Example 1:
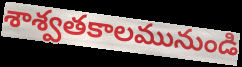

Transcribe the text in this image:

శాశ్వతకాలమునుండి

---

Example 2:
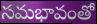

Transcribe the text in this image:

సమభావంతో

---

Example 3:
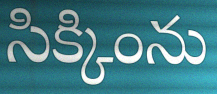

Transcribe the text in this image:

సిక్కింను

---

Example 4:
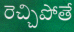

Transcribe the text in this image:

రెచ్చిపోతే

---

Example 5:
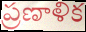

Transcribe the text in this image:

ప్రణాళిక